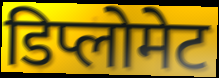
डिप्लोमेट